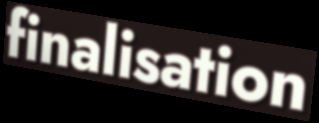
finalisation